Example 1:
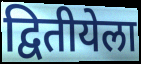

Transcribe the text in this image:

द्वितीयेला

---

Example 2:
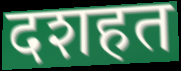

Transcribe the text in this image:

दशहत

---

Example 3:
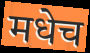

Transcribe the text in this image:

मधेच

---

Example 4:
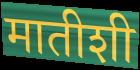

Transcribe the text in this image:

मातीशी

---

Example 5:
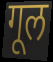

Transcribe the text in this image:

गूल